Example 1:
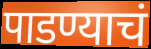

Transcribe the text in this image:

पाडण्याचं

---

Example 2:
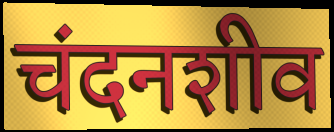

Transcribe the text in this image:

चंदनशीव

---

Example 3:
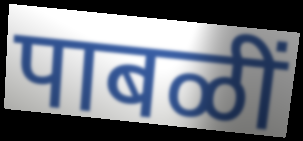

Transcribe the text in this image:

पाबळीं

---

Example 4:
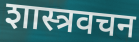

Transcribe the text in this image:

शास्त्रवचन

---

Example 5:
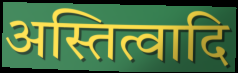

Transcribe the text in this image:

अस्तित्वादि